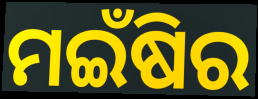
ମଇଁଷିର